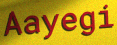
Aayegi